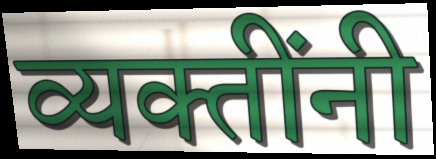
व्यक्‍तींनी